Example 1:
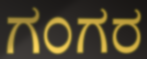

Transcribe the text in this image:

ಗಂಗರ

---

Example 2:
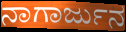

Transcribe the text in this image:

ನಾಗಾರ್ಜುನ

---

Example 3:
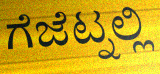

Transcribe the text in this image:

ಗೆಜೆಟ್ನಲ್ಲಿ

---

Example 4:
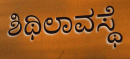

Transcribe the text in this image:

ಶಿಥಿಲಾವಸ್ಥೆ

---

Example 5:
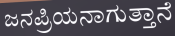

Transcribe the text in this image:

ಜನಪ್ರಿಯನಾಗುತ್ತಾನೆ